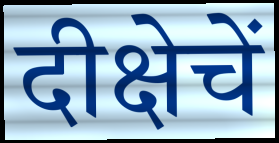
दीक्षेचें